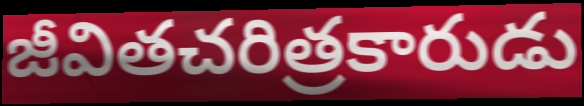
జీవితచరిత్రకారుడు